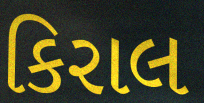
કિરાલ